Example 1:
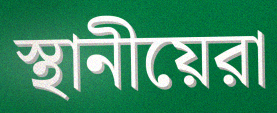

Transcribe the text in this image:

স্থানীয়েরা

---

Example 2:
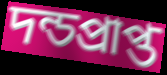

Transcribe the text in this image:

দন্ডপ্রাপ্ত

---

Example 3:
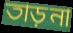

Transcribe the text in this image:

তাড়না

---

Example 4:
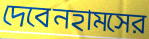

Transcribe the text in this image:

দেবেনহামসের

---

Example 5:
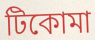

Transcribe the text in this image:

টিকোমা